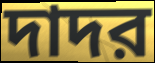
দাদর